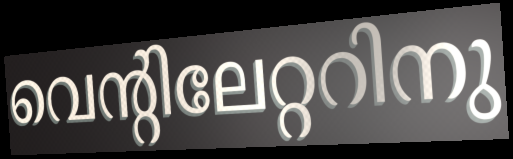
വെന്റിലേറ്ററിനു